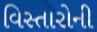
વિસ્તારોની